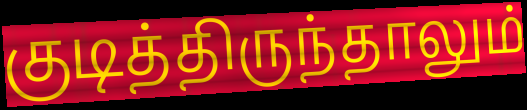
குடித்திருந்தாலும்